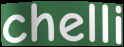
chelli